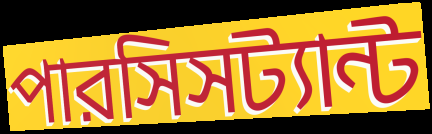
পারসিসট্যান্ট